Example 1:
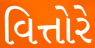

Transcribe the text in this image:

વિત્તોરે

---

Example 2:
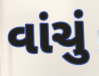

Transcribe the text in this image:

વાંચું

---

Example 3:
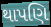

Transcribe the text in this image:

થાપણિ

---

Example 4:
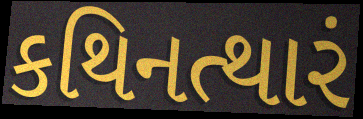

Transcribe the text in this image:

કથિનત્થારં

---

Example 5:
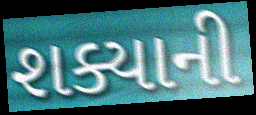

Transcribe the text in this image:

શક્યાની